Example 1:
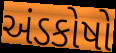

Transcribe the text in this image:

અંડકોષો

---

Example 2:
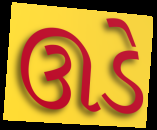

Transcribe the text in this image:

ઊડે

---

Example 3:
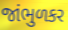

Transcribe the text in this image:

જાંભુળકર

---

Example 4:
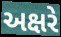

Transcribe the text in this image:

અક્ષરે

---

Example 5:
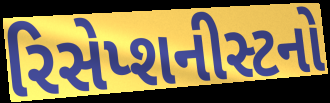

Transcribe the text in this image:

રિસેપ્શનીસ્ટનો